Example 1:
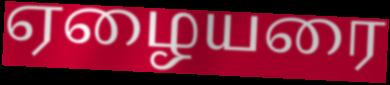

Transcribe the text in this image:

ஏழையரை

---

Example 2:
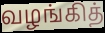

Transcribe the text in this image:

வழங்கித்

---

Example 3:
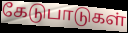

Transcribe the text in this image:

கேடுபாடுகள்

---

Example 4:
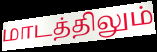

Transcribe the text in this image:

மாடத்திலும்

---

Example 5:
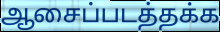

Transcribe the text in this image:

ஆசைப்படத்தக்க